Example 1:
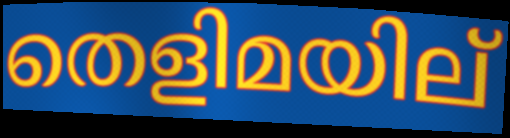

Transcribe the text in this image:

തെളിമയില്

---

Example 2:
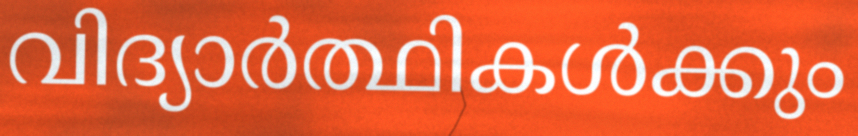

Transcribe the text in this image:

വിദ്യാർത്ഥികൾക്കും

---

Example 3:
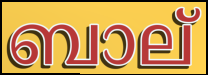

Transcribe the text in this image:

ബാല്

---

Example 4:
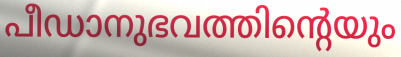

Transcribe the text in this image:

പീഡാനുഭവത്തിന്റെയും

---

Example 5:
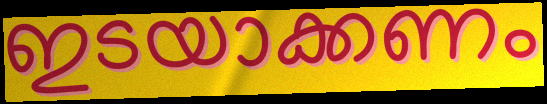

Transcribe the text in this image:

ഇടയാക്കണം